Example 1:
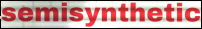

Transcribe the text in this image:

semisynthetic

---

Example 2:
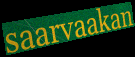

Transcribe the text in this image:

saarvaakan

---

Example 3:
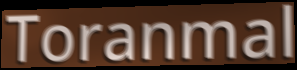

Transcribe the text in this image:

Toranmal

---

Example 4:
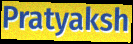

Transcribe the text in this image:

Pratyaksh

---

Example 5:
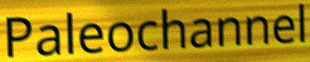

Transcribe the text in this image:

Paleochannel